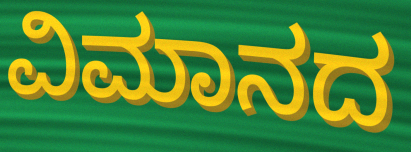
ವಿಮಾನದ